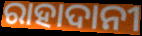
ରାହାଦାନୀ